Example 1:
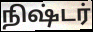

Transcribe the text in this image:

நிஷ்டர்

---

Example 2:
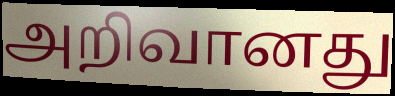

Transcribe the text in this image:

அறிவானது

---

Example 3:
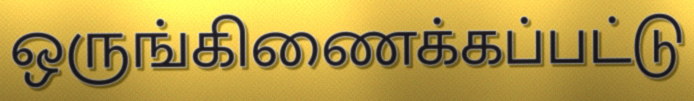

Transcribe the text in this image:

ஒருங்கிணைக்கப்பட்டு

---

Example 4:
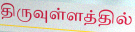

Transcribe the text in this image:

திருவுள்ளத்தில்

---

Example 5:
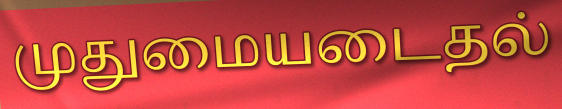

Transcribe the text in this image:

முதுமையடைதல்